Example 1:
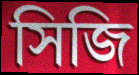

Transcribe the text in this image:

সিজি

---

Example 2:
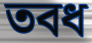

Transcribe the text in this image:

তবধ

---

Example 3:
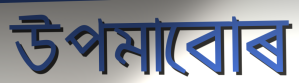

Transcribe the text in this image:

উপমাবোৰ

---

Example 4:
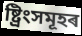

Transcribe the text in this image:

ষ্ট্ৰিংসমূহৰ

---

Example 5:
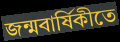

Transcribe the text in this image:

জন্মবাৰ্ষিকীতে